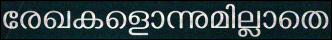
രേഖകളൊന്നുമില്ലാതെ